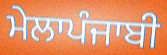
ਮੇਲਾਪੰਜਾਬੀ